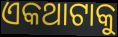
ଏକଥାଟାକୁ